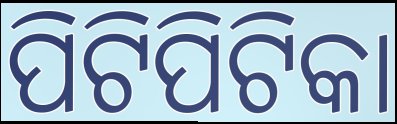
ପିଟିପିଟିକା